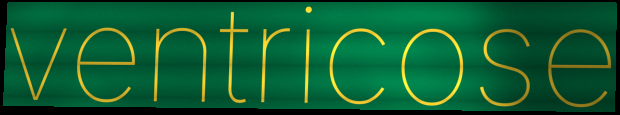
ventricose